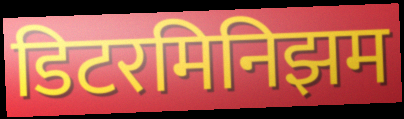
डिटरमिनिझम